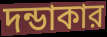
দন্ডাকার